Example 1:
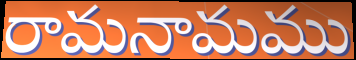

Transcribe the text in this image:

రామనామము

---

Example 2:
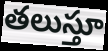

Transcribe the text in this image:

తలుస్తూ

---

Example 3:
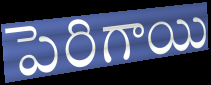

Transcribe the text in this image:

పెరిగాయి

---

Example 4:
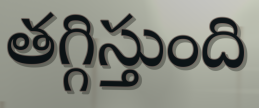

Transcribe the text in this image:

తగ్గిస్తుంది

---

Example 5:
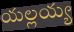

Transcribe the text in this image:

యల్లయ్య